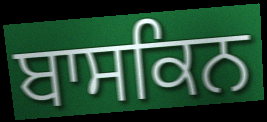
ਬਾਸਕਿਨ